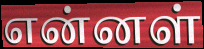
என்னள்